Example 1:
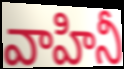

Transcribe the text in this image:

వాహినీ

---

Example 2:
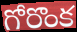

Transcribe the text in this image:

గోరొంక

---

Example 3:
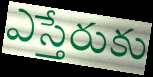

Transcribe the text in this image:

ఎస్తేరుకు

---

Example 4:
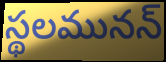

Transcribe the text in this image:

స్థలమునన్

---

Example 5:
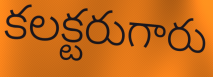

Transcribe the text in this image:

కలక్టరుగారు